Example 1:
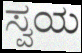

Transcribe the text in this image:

ಸ್ವಯ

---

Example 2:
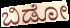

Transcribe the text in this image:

ಬಿಡೋ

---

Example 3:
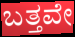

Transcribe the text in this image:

ಬತ್ತವೇ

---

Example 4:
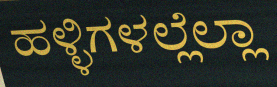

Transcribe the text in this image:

ಹಳ್ಳಿಗಳಲ್ಲೆಲ್ಲಾ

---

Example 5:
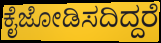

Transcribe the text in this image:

ಕೈಜೋಡಿಸದಿದ್ದರೆ